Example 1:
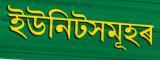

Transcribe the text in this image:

ইউনিটসমূহৰ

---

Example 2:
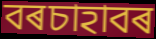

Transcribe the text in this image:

বৰচাহাবৰ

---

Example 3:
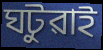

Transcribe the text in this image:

ঘটুৱাই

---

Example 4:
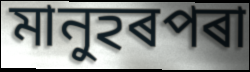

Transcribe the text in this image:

মানুহৰপৰা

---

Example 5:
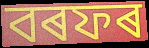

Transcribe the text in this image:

বৰফৰ